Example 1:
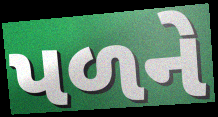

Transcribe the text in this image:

પળને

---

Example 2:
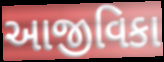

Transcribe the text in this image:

આજીવિકા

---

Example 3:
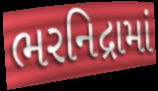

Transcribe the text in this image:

ભરનિદ્રામાં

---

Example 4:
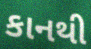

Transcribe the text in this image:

કાનથી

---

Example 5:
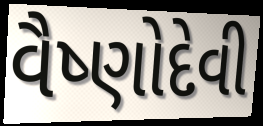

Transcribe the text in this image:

વૈષ્ણોદેવી